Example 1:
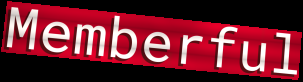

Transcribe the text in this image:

Memberful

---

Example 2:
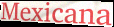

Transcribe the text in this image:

Mexicana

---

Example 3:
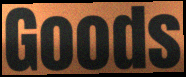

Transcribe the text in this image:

Goods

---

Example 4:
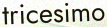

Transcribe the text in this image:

tricesimo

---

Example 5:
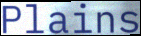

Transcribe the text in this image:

Plains